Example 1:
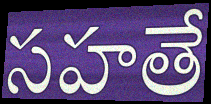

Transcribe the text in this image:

సహతే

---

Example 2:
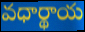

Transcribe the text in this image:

వధార్థాయ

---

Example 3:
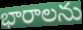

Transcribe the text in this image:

భారాలను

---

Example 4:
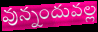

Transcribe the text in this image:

వున్నందువల్ల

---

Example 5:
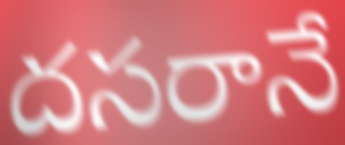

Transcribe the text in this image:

దసరానే